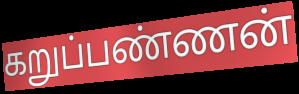
கறுப்பண்ணன்